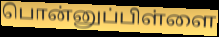
பொன்னுப்பிள்ளை